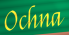
Ochna